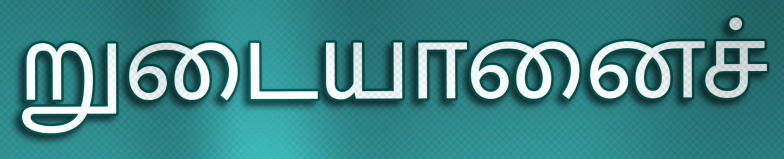
றுடையானைச்